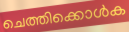
ചെത്തിക്കൊൾക